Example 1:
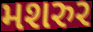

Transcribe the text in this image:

મશરુર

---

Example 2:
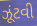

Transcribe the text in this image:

ઝૂંટવી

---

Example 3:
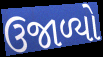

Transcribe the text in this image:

ઉજાળ્યો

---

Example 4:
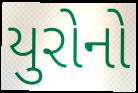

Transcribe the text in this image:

યુરોનો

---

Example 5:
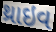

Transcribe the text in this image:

થ્રાઇવ